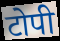
टोपी